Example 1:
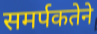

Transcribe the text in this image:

समर्पकतेने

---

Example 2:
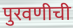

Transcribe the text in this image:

पुरवणीची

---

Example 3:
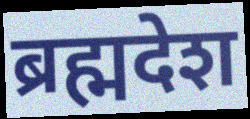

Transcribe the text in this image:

ब्रह्मदेश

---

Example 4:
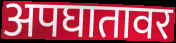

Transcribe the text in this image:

अपघातावर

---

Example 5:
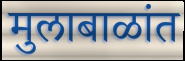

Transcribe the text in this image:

मुलाबाळांत